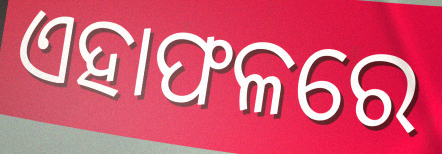
ଏହାଫଳରେ